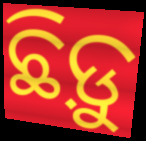
ଛିଡ଼ୁ